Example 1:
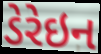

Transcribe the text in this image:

ડેરેઇન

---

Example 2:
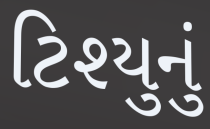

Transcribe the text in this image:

ટિશ્યુનું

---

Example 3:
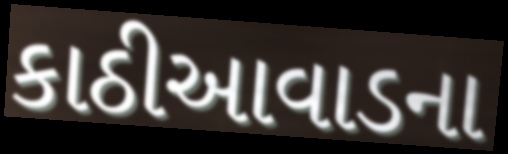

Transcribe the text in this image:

કાઠીઆવાડના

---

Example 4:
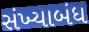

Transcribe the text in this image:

સંખ્યાબંધ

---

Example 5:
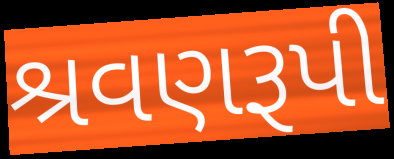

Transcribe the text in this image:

શ્રવણરૂપી